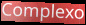
Complexo